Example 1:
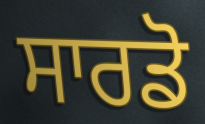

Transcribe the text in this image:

ਸਾਰਡੋ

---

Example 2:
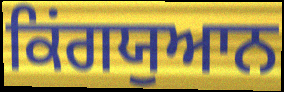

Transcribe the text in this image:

ਕਿਂਗਯੁਆਨ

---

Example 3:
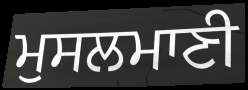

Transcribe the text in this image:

ਮੁਸਲਮਾਣੀ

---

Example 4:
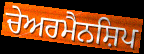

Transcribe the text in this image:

ਚੇਅਰਮੈਨਸ਼ਿਪ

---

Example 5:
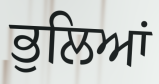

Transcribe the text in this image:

ਭੁਲਿਆਂ